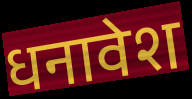
धनावेश